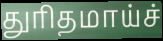
துரிதமாய்ச்